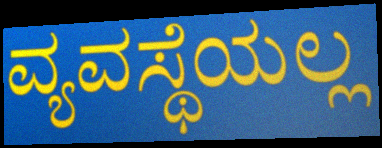
ವ್ಯವಸ್ಥೆಯಲ್ಲ